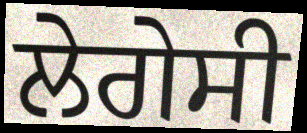
ਲੇਗੇਸੀ